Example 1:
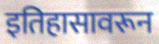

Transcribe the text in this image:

इतिहासावरून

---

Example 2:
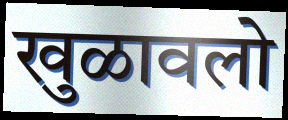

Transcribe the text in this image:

खुळावलो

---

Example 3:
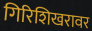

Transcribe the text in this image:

गिरिशिखरावर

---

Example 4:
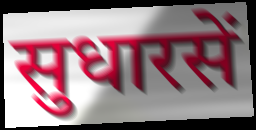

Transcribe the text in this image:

सुधारसें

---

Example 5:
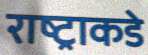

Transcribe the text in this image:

राष्ट्राकडे